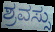
ಶ್ರವಸ್ಸು